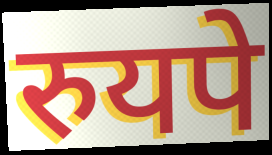
रुयपे